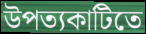
উপত্যকাটিতে